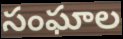
సంఘాల